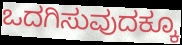
ಒದಗಿಸುವುದಕ್ಕೂ